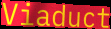
Viaduct